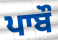
ਪਾਬੌ